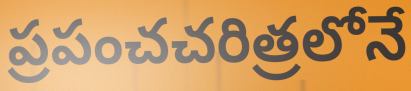
ప్రపంచచరిత్రలోనే